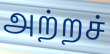
அற்றச்